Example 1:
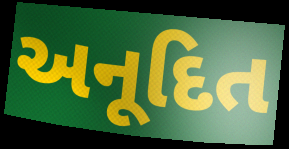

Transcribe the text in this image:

અનૂદિત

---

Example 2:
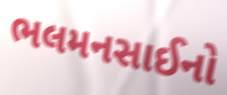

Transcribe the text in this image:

ભલમનસાઈનો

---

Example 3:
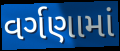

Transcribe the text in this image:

વર્ગણામાં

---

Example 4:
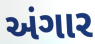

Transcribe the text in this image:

અંગાર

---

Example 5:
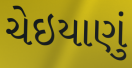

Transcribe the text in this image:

ચેઇયાણું